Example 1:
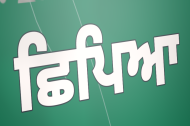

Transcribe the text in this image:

ਛਿਪਿਆ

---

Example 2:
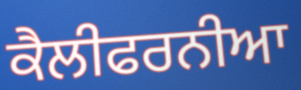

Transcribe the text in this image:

ਕੈਲੀਫਰਨੀਆ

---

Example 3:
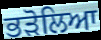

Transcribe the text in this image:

ਭੜੋਲਿਆ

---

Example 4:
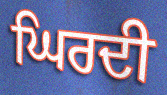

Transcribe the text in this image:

ਘਿਰਦੀ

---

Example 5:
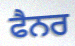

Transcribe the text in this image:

ਫੈਨਰ